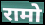
रामो